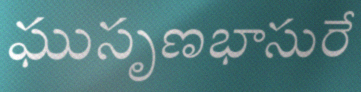
ఘుసృణభాసురే